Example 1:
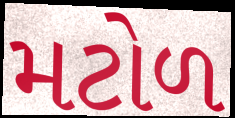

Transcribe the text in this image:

મટોળ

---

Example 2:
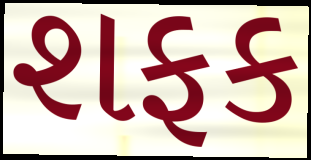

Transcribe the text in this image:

શફક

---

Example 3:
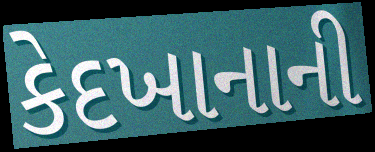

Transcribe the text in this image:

કેદખાનાની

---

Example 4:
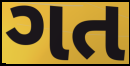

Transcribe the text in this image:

ગત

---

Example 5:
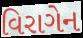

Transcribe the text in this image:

વિરાગેન